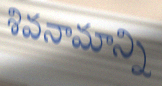
శివనామాన్ని